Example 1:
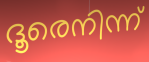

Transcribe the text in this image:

ദൂരെനിന്ന്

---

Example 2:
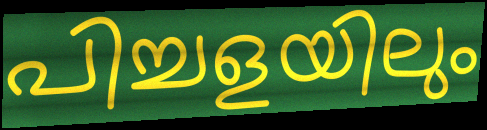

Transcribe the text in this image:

പിച്ചളയിലും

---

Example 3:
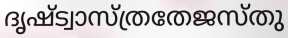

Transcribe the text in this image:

ദൃഷ്ട്വാസ്ത്രതേജസ്തു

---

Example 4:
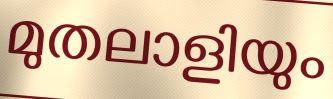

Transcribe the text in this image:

മുതലാളിയും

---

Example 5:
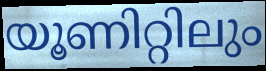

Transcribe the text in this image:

യൂണിറ്റിലും